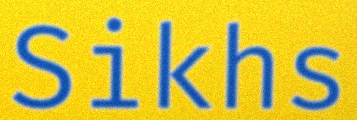
Sikhs